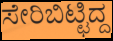
ಸೇರಿಬಿಟ್ಟಿದ್ದ